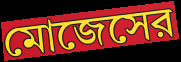
মোজেসের